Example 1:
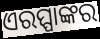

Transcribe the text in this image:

ଏରପ୍ପାଙ୍କର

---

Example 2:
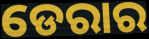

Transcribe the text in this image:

ଡେରାର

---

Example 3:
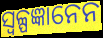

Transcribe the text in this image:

ସ୍ଵଳ୍ପଜ୍ଞାନେନ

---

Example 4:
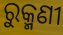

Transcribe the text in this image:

ରୁକ୍ମଣୀ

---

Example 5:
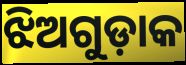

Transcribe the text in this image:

ଝିଅଗୁଡ଼ାକ